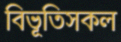
বিভূতিসকল